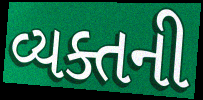
વ્યક્તની